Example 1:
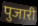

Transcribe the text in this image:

पुजारी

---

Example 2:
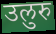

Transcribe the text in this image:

उलुरु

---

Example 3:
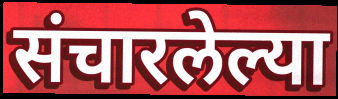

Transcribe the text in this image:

संचारलेल्या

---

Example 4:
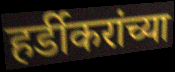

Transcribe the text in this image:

हर्डीकरांच्या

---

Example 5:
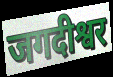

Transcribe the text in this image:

जगदीश्वर